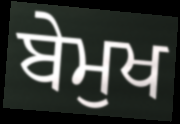
ਬੇਮੁਖ